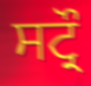
ਸਟ੍ਰੌ